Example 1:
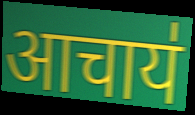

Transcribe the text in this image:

आचाय॑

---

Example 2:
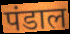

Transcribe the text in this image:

पंडाल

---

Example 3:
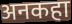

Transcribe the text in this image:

अनकहा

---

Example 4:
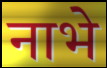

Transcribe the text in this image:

नाभे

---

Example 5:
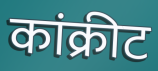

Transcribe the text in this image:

कांक्रीट